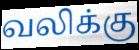
வலிக்கு